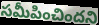
సమీపించిందని